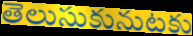
తెలుసుకునుటకు